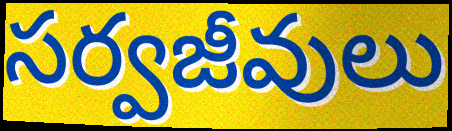
సర్వజీవులు